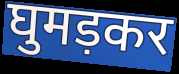
घुमड़कर